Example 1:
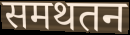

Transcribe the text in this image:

समथतन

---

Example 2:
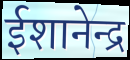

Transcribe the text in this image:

ईशानेन्द्र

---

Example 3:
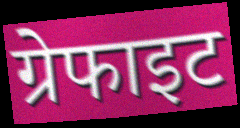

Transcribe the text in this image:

ग्रेफाइट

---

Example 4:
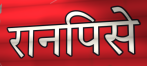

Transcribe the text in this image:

रानपिसे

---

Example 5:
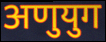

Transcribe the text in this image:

अणुयुग